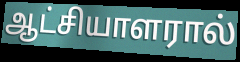
ஆட்சியாளரால்